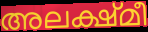
അലക്ഷ്മീ